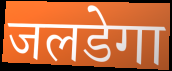
जलडेगा